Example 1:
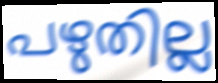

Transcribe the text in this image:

പഴുതില്ല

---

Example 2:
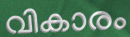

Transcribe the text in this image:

വികാരം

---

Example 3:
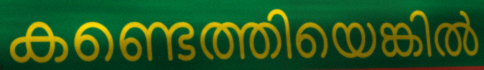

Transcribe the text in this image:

കണ്ടെത്തിയെങ്കിൽ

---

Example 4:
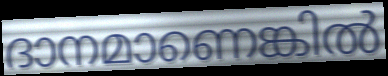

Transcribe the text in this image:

ദാനമാണെങ്കിൽ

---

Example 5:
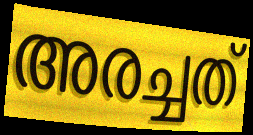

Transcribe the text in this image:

അരച്ചത്